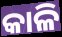
କାଳି